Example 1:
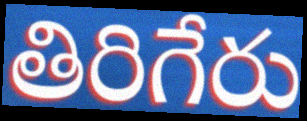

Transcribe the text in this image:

తిరిగేరు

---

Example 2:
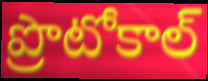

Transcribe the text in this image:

ప్రొటోకాల్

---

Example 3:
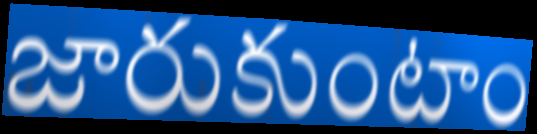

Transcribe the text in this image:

జారుకుంటాం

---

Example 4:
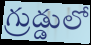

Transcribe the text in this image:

గ్రుడ్డులో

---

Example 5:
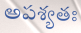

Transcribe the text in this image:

అపశ్యతః